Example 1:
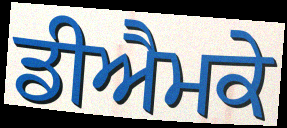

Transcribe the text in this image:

ਡੀਐਮਕੇ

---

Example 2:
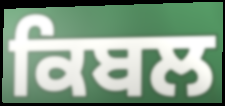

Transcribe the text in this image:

ਕਿਬਲ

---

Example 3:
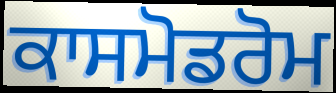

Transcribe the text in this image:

ਕਾਸਮੋਡਰੋਮ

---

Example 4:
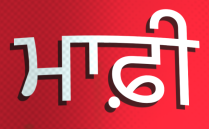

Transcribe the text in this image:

ਮਾਫ਼ੀ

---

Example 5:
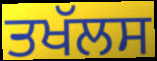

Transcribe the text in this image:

ਤਖੱਲਸ